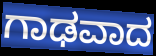
ಗಾಢವಾದ